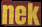
nek